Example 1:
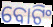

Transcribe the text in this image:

ବୋଟିଂ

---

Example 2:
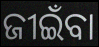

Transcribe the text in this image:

ଜୀଇଁବା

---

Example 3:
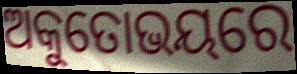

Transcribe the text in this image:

ଅକୁତୋଭୟରେ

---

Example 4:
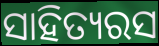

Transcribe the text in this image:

ସାହିତ୍ୟରସ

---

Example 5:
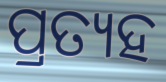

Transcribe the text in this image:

ପ୍ରତ୍ୟହ